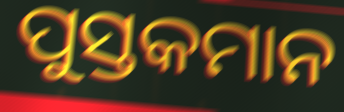
ପୁସ୍ତକମାନ